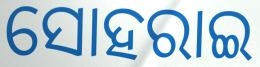
ସୋହରାଇ